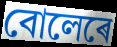
বোলেৰে